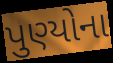
પુણ્યોના